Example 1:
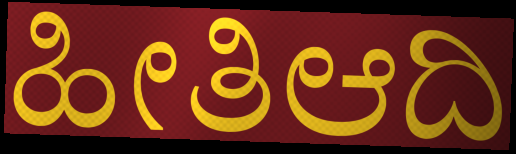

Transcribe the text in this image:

ಹೀತಿಆದಿ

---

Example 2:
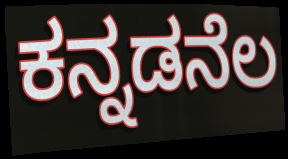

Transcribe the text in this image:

ಕನ್ನಡನೆಲ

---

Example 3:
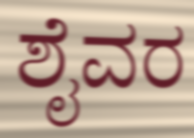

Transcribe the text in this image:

ಶೈವರ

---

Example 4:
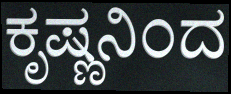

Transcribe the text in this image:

ಕೃಷ್ಣನಿಂದ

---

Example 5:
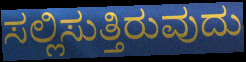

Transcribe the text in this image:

ಸಲ್ಲಿಸುತ್ತಿರುವುದು